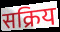
सक्रिय